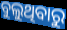
ବୁଲୁଥିବାରୁ